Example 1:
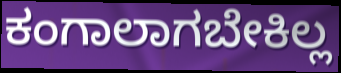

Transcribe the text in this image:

ಕಂಗಾಲಾಗಬೇಕಿಲ್ಲ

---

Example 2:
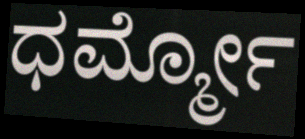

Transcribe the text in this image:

ಧರ್ಮ್ಮೋ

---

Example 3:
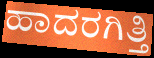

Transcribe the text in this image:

ಹಾದರಗಿತ್ತಿ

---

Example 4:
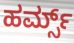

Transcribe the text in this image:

ಹರ್ಮ್ಸ್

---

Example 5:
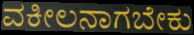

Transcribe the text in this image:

ವಕೀಲನಾಗಬೇಕು